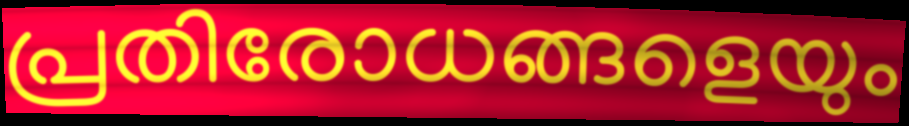
പ്രതിരോധങ്ങളെയും